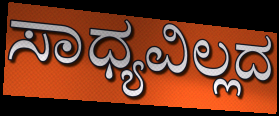
ಸಾಧ್ಯವಿಲ್ಲದ